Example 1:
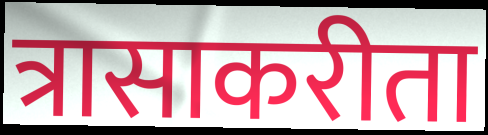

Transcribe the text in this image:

त्रासाकरीता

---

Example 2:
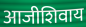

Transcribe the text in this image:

आजीशिवाय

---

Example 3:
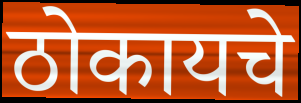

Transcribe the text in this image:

ठोकायचे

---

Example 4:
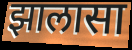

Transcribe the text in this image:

झालासा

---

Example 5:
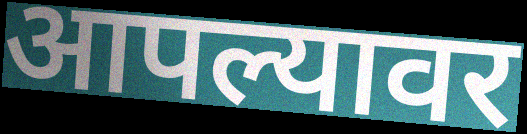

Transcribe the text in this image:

आपल्यावर